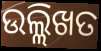
ଉଲ୍ଲିଖତ